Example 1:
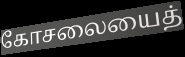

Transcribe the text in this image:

கோசலையைத்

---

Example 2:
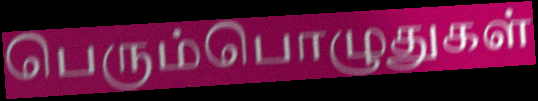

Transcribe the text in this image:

பெரும்பொழுதுகள்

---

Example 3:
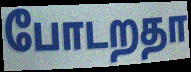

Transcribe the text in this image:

போடறதா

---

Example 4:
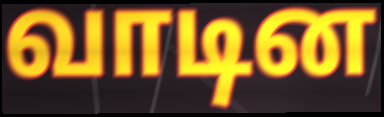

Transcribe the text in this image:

வாடின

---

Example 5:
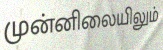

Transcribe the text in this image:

முன்னிலையிலும்